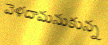
వెళదామనుకున్న